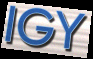
IGY